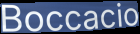
Boccacio